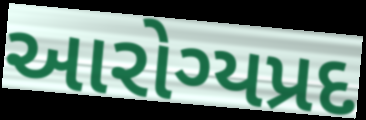
આરોગ્યપ્રદ